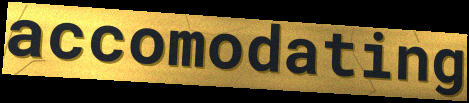
accomodating